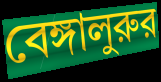
বেঙ্গালুরুর